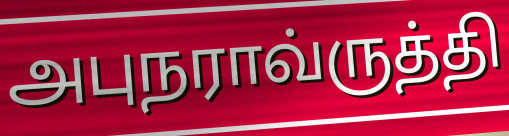
அபுநராவ்ருத்தி